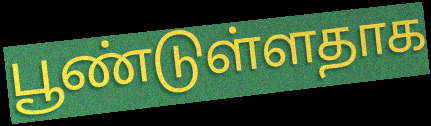
பூண்டுள்ளதாக